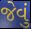
જેવું